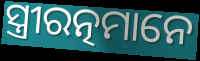
ସ୍ତ୍ରୀରତ୍ନମାନେ